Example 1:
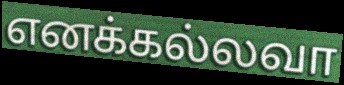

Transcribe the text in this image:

எனக்கல்லவா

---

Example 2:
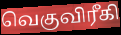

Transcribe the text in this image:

வெகுவிரீகி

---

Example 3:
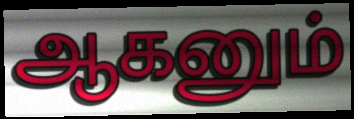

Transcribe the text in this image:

ஆகனும்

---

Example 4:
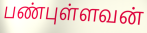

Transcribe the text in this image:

பண்புள்ளவன்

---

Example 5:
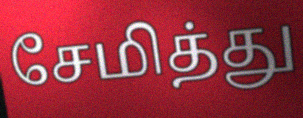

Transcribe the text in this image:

சேமித்து